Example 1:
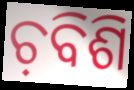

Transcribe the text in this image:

ଚ଼ବିଶି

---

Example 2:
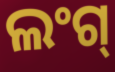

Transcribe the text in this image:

ଲଂଗ୍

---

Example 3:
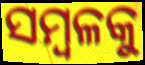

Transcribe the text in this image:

ସମ୍ବଳକୁ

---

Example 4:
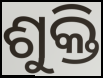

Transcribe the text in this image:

ଶୁକ୍ତି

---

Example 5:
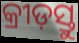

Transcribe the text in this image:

କ୍ରୀଡ଼ସ୍ତୁ